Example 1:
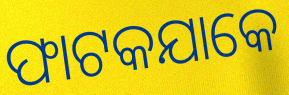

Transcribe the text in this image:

ଫାଟକଯାକେ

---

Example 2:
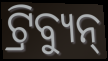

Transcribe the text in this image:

ଟ୍ରିବ୍ୟୁନ୍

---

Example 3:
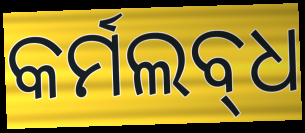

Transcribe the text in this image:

କର୍ମଲବ୍‌ଧ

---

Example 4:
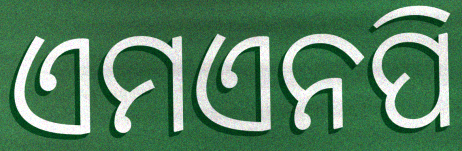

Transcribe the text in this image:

ଏମଏନପି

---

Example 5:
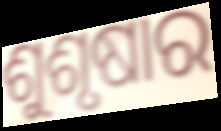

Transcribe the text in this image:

ଶୁଶୃଷାର